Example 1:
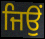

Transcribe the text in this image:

ਜਿਉਂ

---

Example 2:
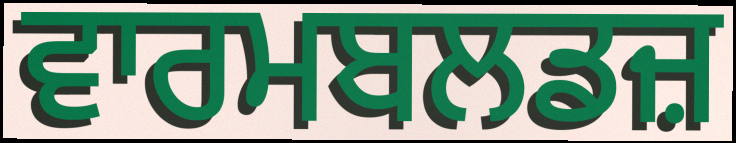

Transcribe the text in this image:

ਵਾਰਮਬਲਡਜ਼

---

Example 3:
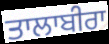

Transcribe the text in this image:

ਤਾਲਾਬੀਰਾ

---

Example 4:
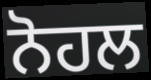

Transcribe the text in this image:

ਨੋਹਲ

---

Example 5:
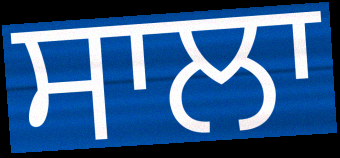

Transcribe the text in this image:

ਸਾਲਾ